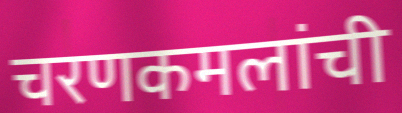
चरणकमलांची